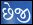
છેજી